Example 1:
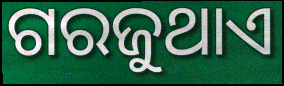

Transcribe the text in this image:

ଗରଜୁଥାଏ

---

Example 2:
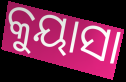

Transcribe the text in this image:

କୁୟାସା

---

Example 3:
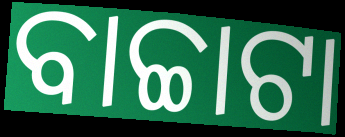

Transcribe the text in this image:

ବାଚ୍ଚାଟା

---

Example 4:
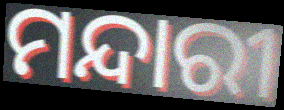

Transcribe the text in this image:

ମନ୍ଦାରୀ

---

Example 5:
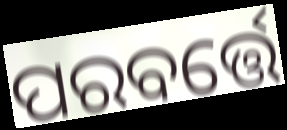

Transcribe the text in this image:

ପରବର୍ତ୍ତେ